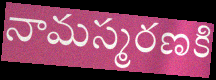
నామస్మరణకి